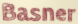
Basner